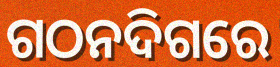
ଗଠନଦିଗରେ